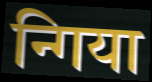
न्गिया